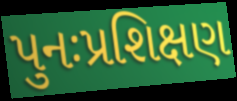
પુનઃપ્રશિક્ષણ